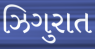
ઝિગુરાત